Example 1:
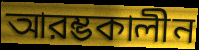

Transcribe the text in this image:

আরম্ভকালীন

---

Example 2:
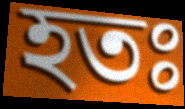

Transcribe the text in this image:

হতঃ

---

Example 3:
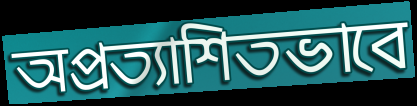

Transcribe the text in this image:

অপ্রত্যাশিতভাবে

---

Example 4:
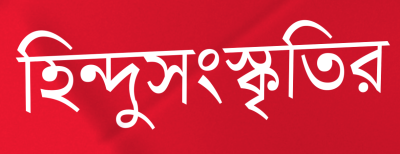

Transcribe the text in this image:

হিন্দুসংস্কৃতির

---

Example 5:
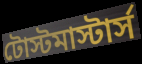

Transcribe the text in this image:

টোস্টমাস্টার্স